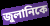
জুলানিকে